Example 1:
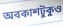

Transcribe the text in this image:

অবকাশটুকুও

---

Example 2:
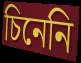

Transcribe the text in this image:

চিনেনি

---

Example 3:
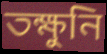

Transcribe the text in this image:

তক্ষুনি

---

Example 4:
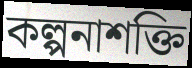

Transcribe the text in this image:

কল্পনাশক্তি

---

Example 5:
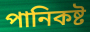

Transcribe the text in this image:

পানিকষ্ট